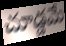
చూడ్డమే